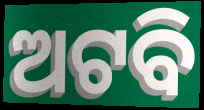
ଅଟବି